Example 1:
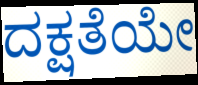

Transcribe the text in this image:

ದಕ್ಷತೆಯೇ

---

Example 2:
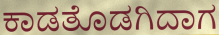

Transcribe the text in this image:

ಕಾಡತೊಡಗಿದಾಗ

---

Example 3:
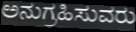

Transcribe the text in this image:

ಅನುಗ್ರಹಿಸುವರು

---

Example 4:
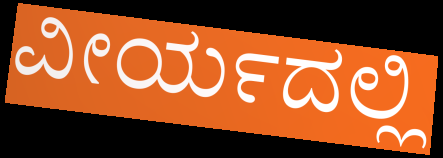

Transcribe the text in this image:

ವೀರ್ಯದಲ್ಲಿ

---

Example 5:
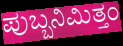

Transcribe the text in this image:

ಪುಬ್ಬನಿಮಿತ್ತಂ